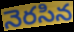
నెరసిన